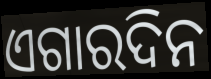
ଏଗାରଦିନ